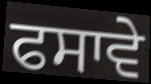
ਫਸਾਵੇ